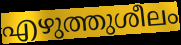
എഴുത്തുശീലം